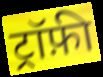
ट्रॉफ़ी